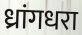
ध्रांगधरा